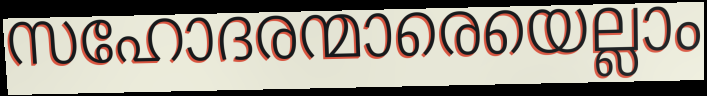
സഹോദരന്മാരെയെല്ലാം